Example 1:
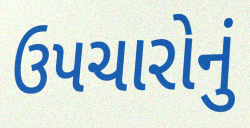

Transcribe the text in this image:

ઉપચારોનું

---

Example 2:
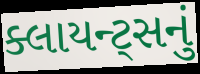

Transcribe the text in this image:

ક્લાયન્ટ્સનું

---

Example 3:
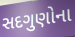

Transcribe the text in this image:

સદગુણોના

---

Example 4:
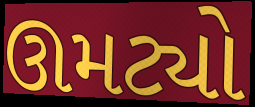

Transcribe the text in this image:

ઊમટ્યો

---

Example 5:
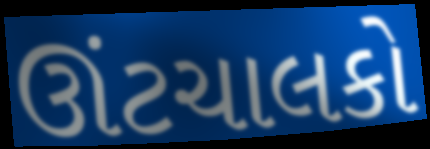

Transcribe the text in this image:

ઊંટચાલકો